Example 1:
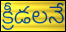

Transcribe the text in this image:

క్రీడలనే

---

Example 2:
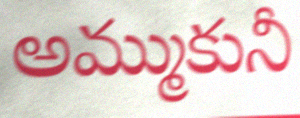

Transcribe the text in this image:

అమ్ముకునీ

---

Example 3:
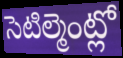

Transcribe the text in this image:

సెటిల్మెంట్లో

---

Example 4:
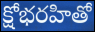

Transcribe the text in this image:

క్షోభరహితో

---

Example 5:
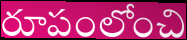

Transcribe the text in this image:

రూపంలోంచి